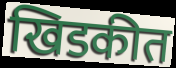
खिडकीत